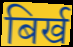
बिर्ख